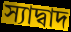
স্যাদ্বাদ